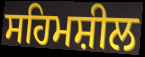
ਸਹਿਮਸ਼ੀਲ